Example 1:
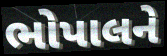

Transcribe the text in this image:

ભોપાલને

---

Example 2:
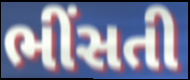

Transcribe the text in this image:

ભીંસતી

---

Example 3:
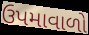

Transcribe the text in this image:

ઉપમાવાળો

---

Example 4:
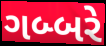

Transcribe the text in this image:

ગબ્બરે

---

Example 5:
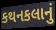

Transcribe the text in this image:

કથનકલાનું